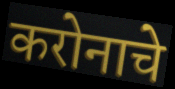
करोनाचे